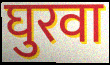
घुरवा